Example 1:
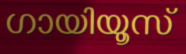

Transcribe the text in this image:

ഗായിയൂസ്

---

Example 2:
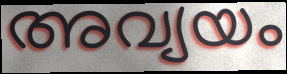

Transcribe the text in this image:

അവ്യയം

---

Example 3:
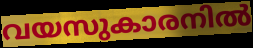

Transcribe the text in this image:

വയസുകാരനിൽ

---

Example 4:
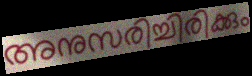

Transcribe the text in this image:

അനുസരിച്ചിരിക്കും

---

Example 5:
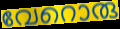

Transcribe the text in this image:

വേറൊരു